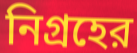
নিগ্রহের